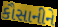
કૌસાનીને